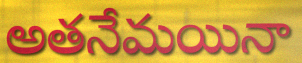
అతనేమయినా